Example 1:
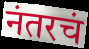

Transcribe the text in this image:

नंतरचं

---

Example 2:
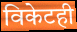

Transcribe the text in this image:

विकेटही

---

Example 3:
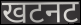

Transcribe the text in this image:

खटनट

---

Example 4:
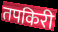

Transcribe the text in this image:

तपकिरी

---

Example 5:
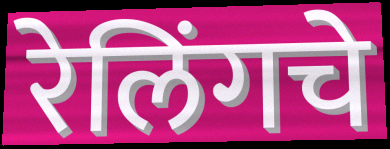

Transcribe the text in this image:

रेलिंगचे